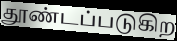
தூண்டப்படுகிற